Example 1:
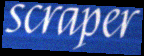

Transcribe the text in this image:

scraper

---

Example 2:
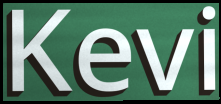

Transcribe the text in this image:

Kevi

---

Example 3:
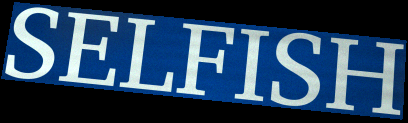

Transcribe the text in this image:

SELFISH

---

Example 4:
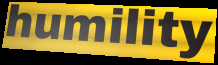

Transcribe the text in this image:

humility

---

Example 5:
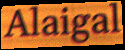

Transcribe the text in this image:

Alaigal